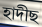
হাদীছ